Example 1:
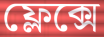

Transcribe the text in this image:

ফ্লেক্সে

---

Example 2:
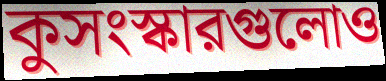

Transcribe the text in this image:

কুসংস্কারগুলোও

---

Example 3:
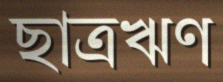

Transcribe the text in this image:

ছাত্রঋণ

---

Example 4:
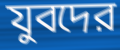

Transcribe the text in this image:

যুবদের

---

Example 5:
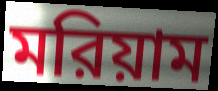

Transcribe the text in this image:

মরিয়াম